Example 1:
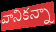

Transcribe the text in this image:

వానికన్నా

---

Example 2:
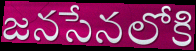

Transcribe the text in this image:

జనసేనలోకి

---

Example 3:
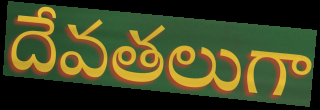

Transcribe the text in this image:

దేవతలుగా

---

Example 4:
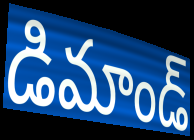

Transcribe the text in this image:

డిమాండ్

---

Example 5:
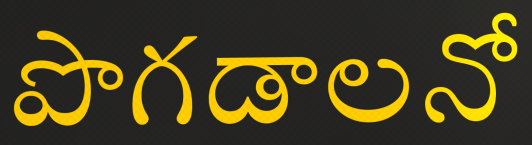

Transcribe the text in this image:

పొగడాలనో